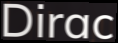
Dirac